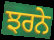
ਝਰਨੇ